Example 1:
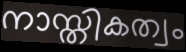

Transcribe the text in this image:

നാസ്തികത്വം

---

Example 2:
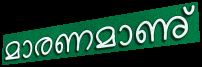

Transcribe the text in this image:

മാരണമാണു്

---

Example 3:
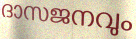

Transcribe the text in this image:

ദാസജനവും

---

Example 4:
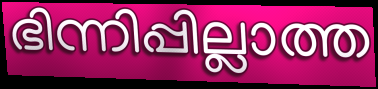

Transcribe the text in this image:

ഭിന്നിപ്പില്ലാത്ത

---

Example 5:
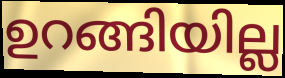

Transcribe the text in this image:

ഉറങ്ങിയില്ല